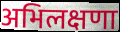
अभिलक्षणा